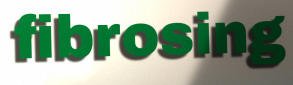
fibrosing